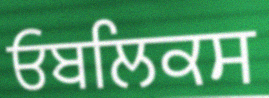
ਓਬਲਿਕਸ